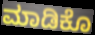
ಮಾಡಿಕೊ